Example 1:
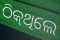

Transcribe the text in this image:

ଠିକ୍‌ଥିଲେ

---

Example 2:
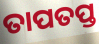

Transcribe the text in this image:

ତାପତପ୍ତ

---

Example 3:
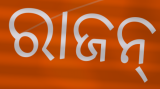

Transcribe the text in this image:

ରାଜନ୍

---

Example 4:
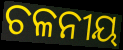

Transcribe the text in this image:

ଚଳନୀୟ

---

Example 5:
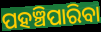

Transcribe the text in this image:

ପହଞ୍ଚିପାରିବା